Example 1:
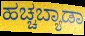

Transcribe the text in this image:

ಹಚ್ಚಬ್ಯಾಡಾ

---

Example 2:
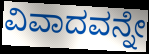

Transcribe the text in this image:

ವಿವಾದವನ್ನೇ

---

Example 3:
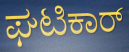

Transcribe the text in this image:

ಘಟಿಕಾರ್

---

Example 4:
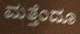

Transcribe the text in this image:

ಮತ್ತೆಂದೂ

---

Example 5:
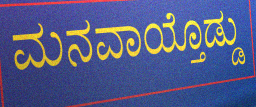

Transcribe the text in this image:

ಮನವಾಯ್ತೊಡ್ಡು